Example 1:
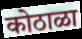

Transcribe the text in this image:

कोठाळा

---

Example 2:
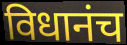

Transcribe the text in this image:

विधानंच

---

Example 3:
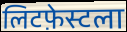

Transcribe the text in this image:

लिटफ़ेस्टला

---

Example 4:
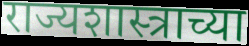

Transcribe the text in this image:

राज्यशास्त्राच्या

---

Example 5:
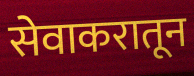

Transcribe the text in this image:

सेवाकरातून